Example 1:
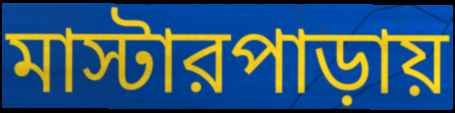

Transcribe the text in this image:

মাস্টারপাড়ায়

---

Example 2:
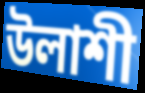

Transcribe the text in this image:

উলাশী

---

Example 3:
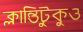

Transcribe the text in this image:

ক্লান্তিটুকুও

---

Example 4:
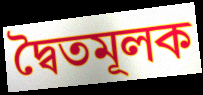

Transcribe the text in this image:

দ্বৈতমূলক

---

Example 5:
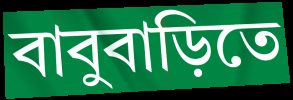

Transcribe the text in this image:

বাবুবাড়িতে